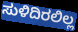
ಸುಳಿದಿರಲಿಲ್ಲ